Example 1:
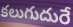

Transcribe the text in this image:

కలుగుదురే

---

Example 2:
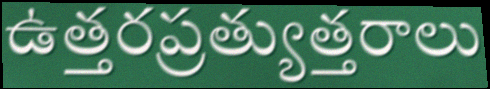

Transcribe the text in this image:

ఉత్తరప్రత్యుత్తరాలు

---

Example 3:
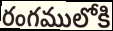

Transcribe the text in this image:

రంగములోకి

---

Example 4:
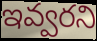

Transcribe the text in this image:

ఇవ్వరని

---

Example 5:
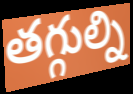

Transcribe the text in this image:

తగ్గుల్ని